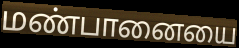
மண்பானையை